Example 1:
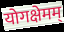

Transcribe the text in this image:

योगक्षेमम्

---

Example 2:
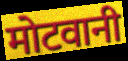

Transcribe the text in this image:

मोटवानी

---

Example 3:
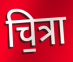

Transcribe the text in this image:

चि॒त्रा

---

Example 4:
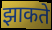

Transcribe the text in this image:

झाकते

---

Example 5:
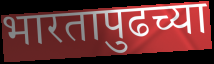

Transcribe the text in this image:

भारतापुढच्या